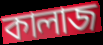
কালাজ